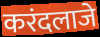
करंदलाजे